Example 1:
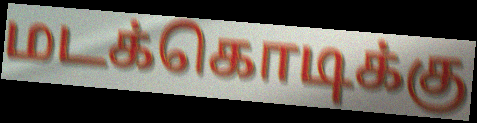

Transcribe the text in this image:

மடக்கொடிக்கு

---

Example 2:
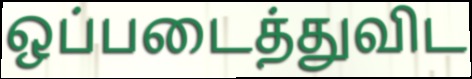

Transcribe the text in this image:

ஒப்படைத்துவிட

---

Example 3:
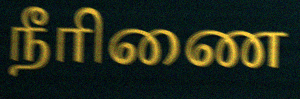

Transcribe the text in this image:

நீரிணை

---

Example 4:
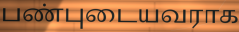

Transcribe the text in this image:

பண்புடையவராக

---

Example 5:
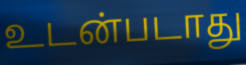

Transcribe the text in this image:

உடன்படாது